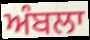
ਅੰਬਲਾ